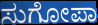
ಸುಗೋಪಾ